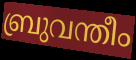
ബ്രുവന്തീം